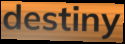
destiny